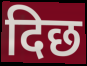
दिछ